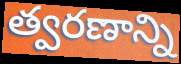
త్వరణాన్ని